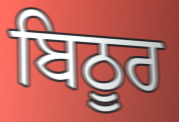
ਬਿਠੂਰ